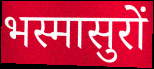
भस्मासुरों